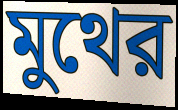
মুথের